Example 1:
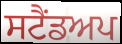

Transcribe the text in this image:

ਸਟੈਂਡਅਪ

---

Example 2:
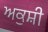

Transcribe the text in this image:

ਅਕੁਸ਼ੀ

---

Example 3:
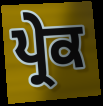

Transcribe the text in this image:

ਪ੍ਰੇਕ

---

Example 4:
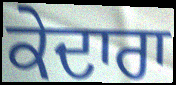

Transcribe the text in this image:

ਕੇਦਾਰਾ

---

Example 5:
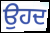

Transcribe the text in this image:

ਉਹਦ